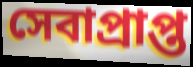
সেবাপ্রাপ্ত